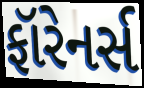
ફૉરેનર્સ